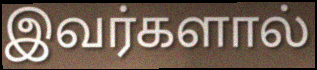
இவர்களால்